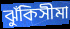
ঝুঁকিসীমা